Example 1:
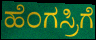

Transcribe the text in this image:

ಹೆಂಗಸ್ರಿಗೆ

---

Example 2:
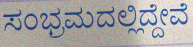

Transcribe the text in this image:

ಸಂಭ್ರಮದಲ್ಲಿದ್ದೇವೆ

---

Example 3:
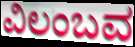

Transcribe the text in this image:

ವಿಲಂಬವ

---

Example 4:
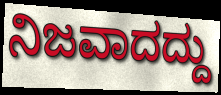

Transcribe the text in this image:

ನಿಜವಾದದ್ದು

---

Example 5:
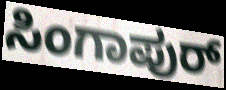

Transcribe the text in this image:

ಸಿಂಗಾಪುರ್